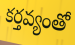
కర్తవ్యంతో